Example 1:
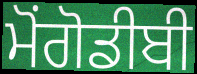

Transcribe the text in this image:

ਮੋਂਗੋਡੀਬੀ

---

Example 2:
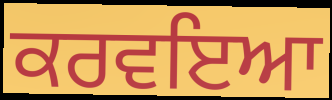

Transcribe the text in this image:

ਕਰਵਇਆ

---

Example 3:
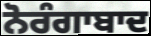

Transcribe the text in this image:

ਨੋਰੰਗਾਬਾਦ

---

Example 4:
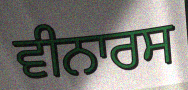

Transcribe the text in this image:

ਵੀਨਾਰਸ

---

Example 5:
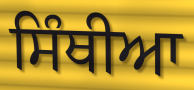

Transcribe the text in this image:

ਸਿੰਥੀਆ